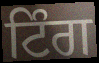
ਟਿੰਗ